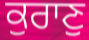
ਕੁਰਾਣੁ